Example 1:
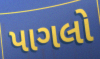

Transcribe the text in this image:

પાગલો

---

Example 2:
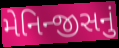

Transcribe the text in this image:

મેનિન્જીસનું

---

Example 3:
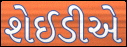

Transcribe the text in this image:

શેઈડીએ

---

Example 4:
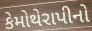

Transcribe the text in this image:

કેમોથેરાપીનો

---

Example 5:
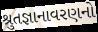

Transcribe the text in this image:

શ્રુતજ્ઞાનાવરણનો